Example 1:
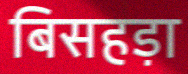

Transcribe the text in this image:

बिसहड़ा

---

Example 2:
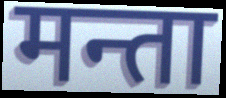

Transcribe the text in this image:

मन्ता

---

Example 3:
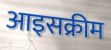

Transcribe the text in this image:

आइसक्रीम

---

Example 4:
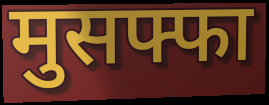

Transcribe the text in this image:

मुसफ्फा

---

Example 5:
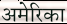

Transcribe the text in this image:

अमेरिका